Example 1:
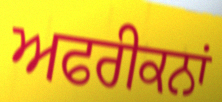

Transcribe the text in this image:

ਅਫਰੀਕਨਾਂ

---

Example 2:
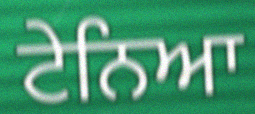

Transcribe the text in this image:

ਟੇਨਿਆ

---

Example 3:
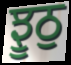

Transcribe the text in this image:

ਝੂਠੁ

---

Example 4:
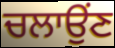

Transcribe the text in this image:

ਚਲਾਉਂਣ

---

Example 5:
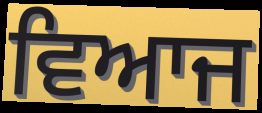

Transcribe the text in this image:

ਵਿਆਜ